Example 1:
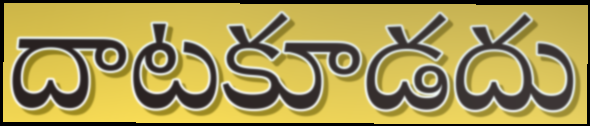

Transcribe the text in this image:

దాటకూడదు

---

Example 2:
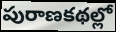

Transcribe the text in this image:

పురాణకథల్లో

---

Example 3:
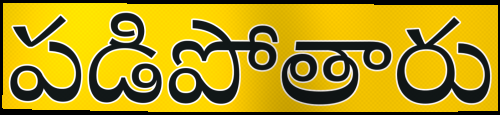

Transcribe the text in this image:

పడిపోతారు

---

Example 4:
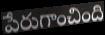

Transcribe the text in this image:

పేరుగాంచింది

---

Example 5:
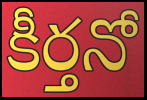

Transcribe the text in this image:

కీర్తనో